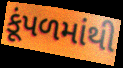
કૂંપળમાંથી